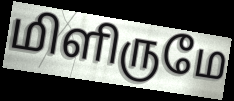
மிளிருமே